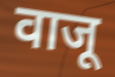
वाजू